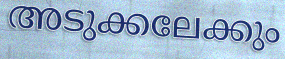
അടുക്കലേക്കും